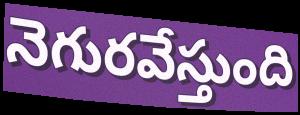
నెగురవేస్తుంది